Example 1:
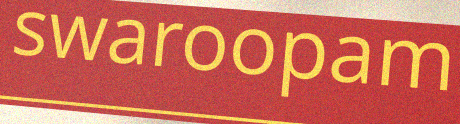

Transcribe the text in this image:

swaroopam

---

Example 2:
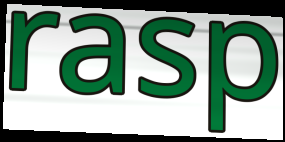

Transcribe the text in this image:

rasp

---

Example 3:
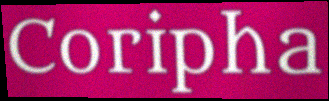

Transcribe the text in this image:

Coripha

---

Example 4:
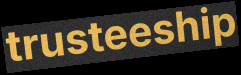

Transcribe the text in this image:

trusteeship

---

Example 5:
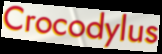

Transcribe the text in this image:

Crocodylus